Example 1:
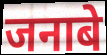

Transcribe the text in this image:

जनाबे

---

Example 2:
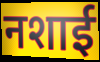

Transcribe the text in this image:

नशाई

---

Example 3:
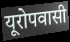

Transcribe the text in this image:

यूरोपवासी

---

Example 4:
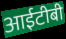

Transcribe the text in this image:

आईटीबी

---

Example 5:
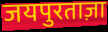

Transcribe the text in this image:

जयपुरताज़ा